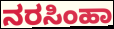
ನರಸಿಂಹಾ